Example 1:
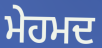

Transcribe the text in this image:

ਮੇਹਮਦ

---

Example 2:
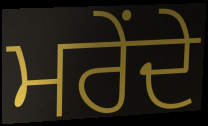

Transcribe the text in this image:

ਮਰੇਂਦੇ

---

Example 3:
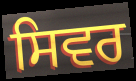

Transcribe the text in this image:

ਸਿਵਰ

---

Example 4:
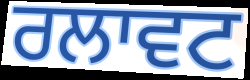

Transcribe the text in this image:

ਰਲਾਵਟ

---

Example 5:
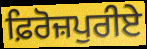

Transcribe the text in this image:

ਫ਼ਿਰੋਜ਼ਪੁਰੀਏ